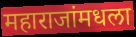
महाराजांमधला